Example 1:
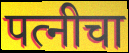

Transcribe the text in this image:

पत्नीचा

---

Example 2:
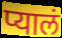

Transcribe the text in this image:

प्यालं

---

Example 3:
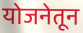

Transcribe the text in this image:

योजनेतून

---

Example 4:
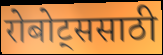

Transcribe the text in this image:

रोबोट्ससाठी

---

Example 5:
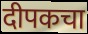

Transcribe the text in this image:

दीपकचा